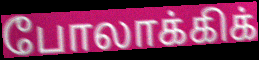
போலாக்கிக்